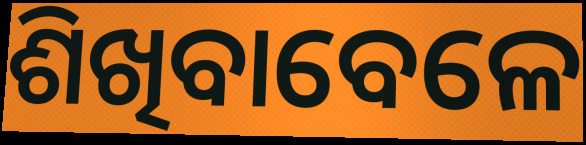
ଶିଖିବାବେଳେ